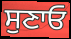
ਸੁਣਾਓ